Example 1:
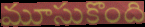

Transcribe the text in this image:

మూసుకొంది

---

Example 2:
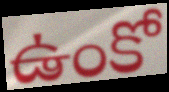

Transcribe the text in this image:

ఉంకో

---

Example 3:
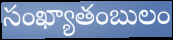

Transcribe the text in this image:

సంఖ్యాతంబులం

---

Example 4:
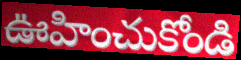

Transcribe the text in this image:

ఊహించుకోండి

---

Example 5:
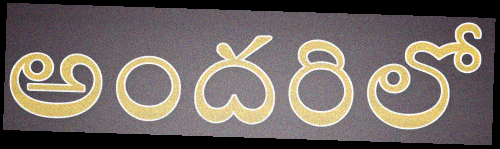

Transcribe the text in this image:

అందరిలో